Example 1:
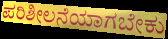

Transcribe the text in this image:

ಪರಿಶೀಲನೆಯಾಗಬೇಕು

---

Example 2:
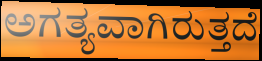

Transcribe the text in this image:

ಅಗತ್ಯವಾಗಿರುತ್ತದೆ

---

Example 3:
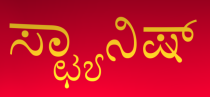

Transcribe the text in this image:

ಸ್ಟ್ಯಾನಿಷ್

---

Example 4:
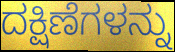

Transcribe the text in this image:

ದಕ್ಷಿಣೆಗಳನ್ನು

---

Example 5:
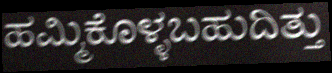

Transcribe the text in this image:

ಹಮ್ಮಿಕೊಳ್ಳಬಹುದಿತ್ತು